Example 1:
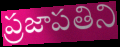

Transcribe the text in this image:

ప్రజాపతిని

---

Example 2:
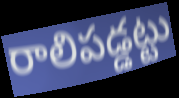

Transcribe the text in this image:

రాలిపడ్డట్టు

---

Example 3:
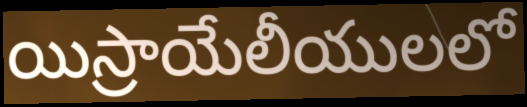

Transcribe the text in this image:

యిస్రాయేలీయులలో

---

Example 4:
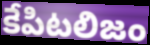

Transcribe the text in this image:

కేపిటలిజం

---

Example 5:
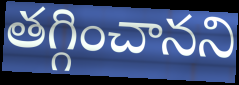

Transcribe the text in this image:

తగ్గించానని